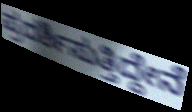
ಪ್ರದರ್ಶಿಸುತ್ತಿದ್ದೇನೆ